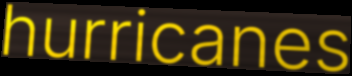
hurricanes